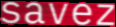
savez